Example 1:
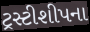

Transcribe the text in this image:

ટ્રસ્ટીશીપના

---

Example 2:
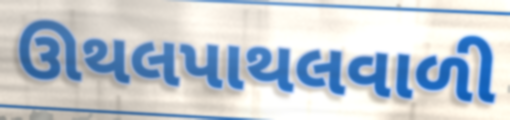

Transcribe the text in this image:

ઊથલપાથલવાળી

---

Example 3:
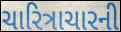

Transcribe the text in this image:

ચારિત્રાચારની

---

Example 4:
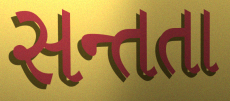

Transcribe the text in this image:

સન્તતા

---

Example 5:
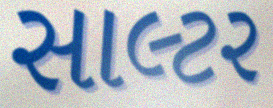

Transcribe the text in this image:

સાલ્ટર